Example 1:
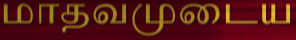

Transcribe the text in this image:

மாதவமுடைய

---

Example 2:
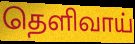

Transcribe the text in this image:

தெளிவாய்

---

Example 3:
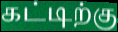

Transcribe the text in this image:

கட்டிற்கு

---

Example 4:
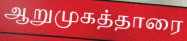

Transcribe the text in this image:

ஆறுமுகத்தாரை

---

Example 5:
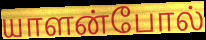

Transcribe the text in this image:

யாளன்போல்